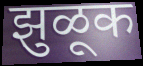
झुळूक